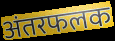
अंतरफलक